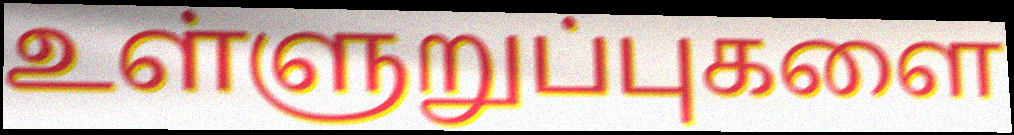
உள்ளுறுப்புகளை